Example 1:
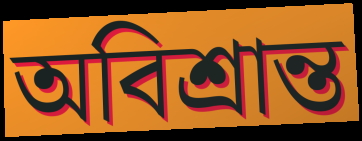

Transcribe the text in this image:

অবিশ্রান্ত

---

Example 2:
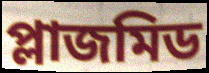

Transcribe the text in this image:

প্লাজমিড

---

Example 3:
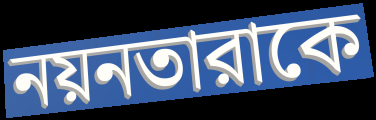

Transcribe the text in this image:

নয়নতারাকে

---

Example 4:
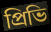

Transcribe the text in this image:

প্রিভি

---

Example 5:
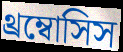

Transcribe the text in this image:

থ্রম্বোসিস